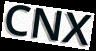
CNX